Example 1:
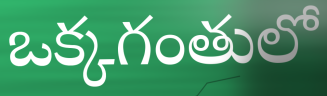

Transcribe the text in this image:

ఒక్కగంతులో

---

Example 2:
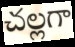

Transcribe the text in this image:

చల్లగా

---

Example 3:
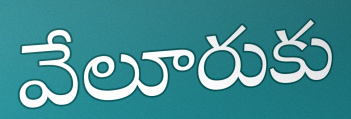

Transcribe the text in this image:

వేలూరుకు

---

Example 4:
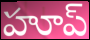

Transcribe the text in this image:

హూప్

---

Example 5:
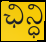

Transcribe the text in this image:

ఛిన్ధి